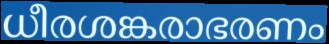
ധീരശങ്കരാഭരണം